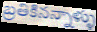
బ్రతికినన్నాళ్ళు